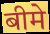
बीमे